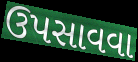
ઉપસાવવા